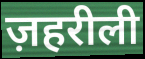
ज़हरीली